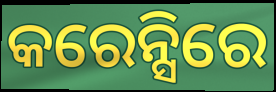
କରେନ୍ସିରେ